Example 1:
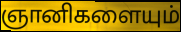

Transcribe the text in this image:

ஞானிகளையும்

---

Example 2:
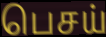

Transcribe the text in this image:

பெசய்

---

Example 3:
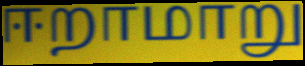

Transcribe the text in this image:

ஈறாமாறு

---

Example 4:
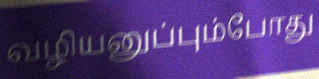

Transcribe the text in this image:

வழியனுப்பும்போது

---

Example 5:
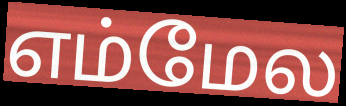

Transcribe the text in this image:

எம்மேல